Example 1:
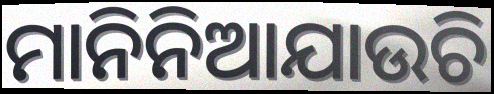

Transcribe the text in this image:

ମାନିନିଆଯାଉଚି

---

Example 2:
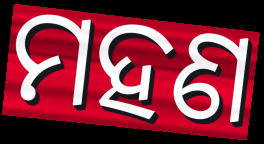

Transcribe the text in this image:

ମହଣ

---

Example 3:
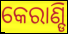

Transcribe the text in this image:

କେରାଣ୍ଡି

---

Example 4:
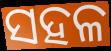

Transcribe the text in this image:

ସହଳ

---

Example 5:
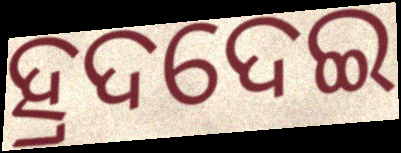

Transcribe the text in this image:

ହ୍ରଦଦେଇ